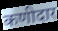
कणीदार